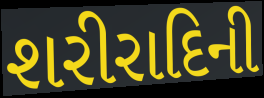
શરીરાદિની